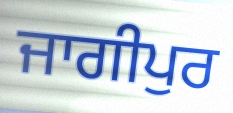
ਜਾਗੀਪੁਰ